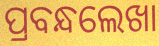
ପ୍ରବନ୍ଧଲେଖା